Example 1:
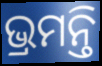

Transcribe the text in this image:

ଭ୍ରମନ୍ତି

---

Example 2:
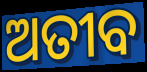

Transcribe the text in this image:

ଅତୀବ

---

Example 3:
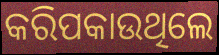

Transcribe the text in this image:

କରିପକାଉଥିଲେ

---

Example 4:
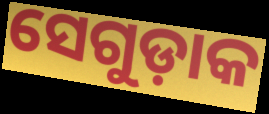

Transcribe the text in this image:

ସେଗୁଡ଼ାକ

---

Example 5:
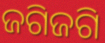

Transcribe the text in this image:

ଜଗିଜଗି